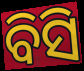
ବିସି